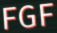
FGF